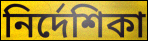
নিৰ্দেশিকা